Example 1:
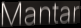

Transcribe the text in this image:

Mantar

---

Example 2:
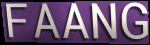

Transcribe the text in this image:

FAANG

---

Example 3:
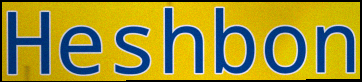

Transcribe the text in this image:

Heshbon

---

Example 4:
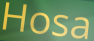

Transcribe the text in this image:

Hosa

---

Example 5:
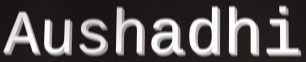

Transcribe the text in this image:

Aushadhi